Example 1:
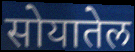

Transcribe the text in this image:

सोयातेल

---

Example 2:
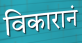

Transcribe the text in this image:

विकारानं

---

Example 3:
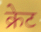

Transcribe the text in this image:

क्रेट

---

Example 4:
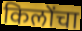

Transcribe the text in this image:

किलोंचा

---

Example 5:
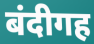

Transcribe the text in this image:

बंदीगह